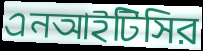
এনআইটিসির